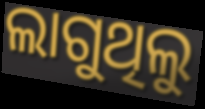
ଲାଗୁଥିଲୁ